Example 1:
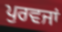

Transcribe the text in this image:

ਪੁਰਵਜਾਂ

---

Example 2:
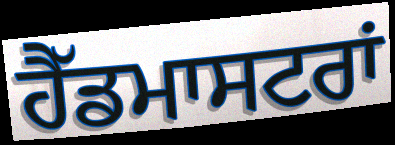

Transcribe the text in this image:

ਹੈੱਡਮਾਸਟਰਾਂ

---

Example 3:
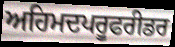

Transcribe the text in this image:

ਅਹਿਮਦਪਰੂਫਰੀਡਰ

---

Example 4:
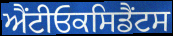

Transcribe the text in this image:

ਐਂਟੀਓਕਸਿਡੈਂਟਸ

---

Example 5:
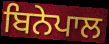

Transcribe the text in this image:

ਬਿਨੇਪਾਲ